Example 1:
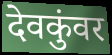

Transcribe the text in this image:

देवकुंवर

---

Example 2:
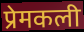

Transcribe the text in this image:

प्रेमकली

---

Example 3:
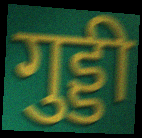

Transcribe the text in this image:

गुड्डी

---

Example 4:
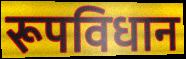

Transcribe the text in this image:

रूपविधान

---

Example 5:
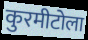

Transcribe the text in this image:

कुरमीटोला